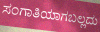
ಸಂಗಾತಿಯಾಗಬಲ್ಲದು